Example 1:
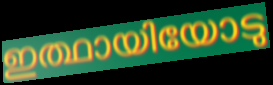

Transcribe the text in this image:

ഇത്ഥായിയോടു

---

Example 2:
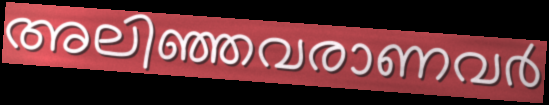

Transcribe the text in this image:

അലിഞ്ഞവരാണവർ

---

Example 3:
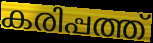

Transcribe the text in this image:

കരിപ്പത്ത്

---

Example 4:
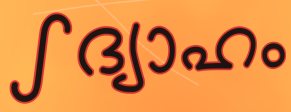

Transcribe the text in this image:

ഽദ്യാഹം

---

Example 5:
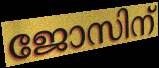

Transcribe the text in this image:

ജോസിന്